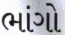
ભાંગો